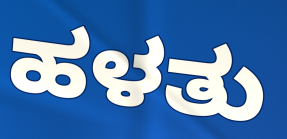
ಹಳತು